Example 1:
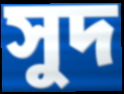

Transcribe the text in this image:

সুদ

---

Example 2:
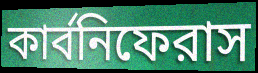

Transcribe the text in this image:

কার্বনিফেরাস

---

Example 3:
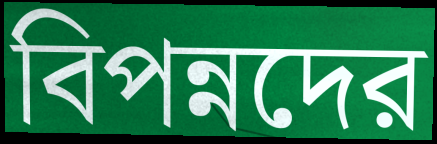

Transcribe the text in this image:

বিপন্নদের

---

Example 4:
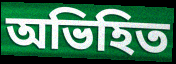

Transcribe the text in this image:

অভিহিত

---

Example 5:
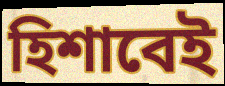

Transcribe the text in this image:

হিশাবেই